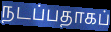
நடப்பதாகப்